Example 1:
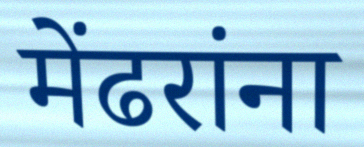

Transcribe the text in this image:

मेंढरांना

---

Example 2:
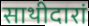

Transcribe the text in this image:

साथीदारां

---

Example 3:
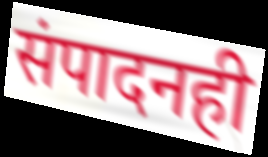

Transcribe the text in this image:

संपादनही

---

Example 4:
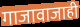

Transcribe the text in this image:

गाजावाजाही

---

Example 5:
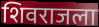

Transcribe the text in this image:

शिवराजला